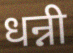
धन्नी